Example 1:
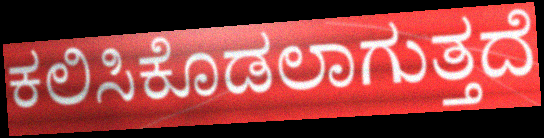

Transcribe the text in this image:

ಕಲಿಸಿಕೊಡಲಾಗುತ್ತದೆ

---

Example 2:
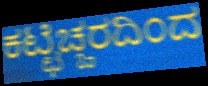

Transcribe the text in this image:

ಕಟ್ಟೆಚ್ಚರದಿಂದ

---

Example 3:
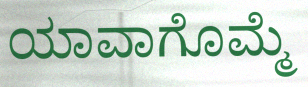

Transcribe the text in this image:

ಯಾವಾಗೊಮ್ಮೆ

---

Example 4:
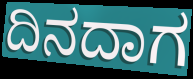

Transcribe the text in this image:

ದಿನದಾಗ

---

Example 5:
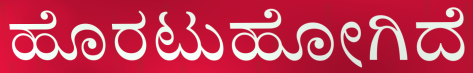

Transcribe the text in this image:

ಹೊರಟುಹೋಗಿದೆ